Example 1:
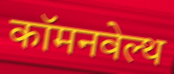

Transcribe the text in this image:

कॉमनवेल्थ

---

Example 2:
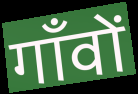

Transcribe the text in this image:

गाँवों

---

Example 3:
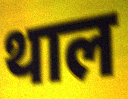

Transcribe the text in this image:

थाल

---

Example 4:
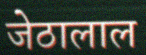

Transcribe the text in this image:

जेठालाल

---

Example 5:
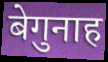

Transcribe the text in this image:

बेगुनाह